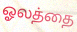
ஓலத்தை